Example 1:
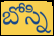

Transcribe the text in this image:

బోస్ని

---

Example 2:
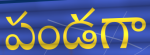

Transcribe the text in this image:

పండగా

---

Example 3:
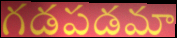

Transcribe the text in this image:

గడపడమా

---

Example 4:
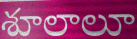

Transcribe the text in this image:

శూలాలూ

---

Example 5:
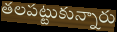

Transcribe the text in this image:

తలపట్టుకున్నారు